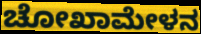
ಚೋಖಾಮೇಳನ